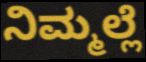
ನಿಮ್ಮಲ್ಲೆ